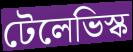
টেলেভিস্ক